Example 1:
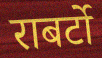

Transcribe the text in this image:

राबर्टो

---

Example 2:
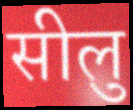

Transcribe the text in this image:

सीलु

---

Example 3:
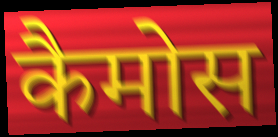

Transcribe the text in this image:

कैमोस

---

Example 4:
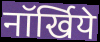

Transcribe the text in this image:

नॉर्खिये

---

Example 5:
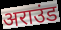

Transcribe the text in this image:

अराउंड